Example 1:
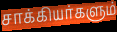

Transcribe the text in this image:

சாக்கியர்களும்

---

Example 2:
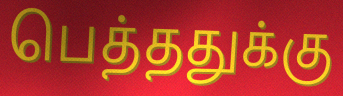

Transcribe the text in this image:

பெத்ததுக்கு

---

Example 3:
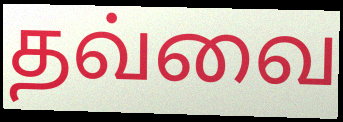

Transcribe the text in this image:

தவ்வை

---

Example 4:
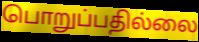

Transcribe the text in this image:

பொறுப்பதில்லை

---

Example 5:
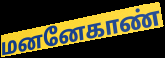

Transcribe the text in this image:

மனனேகாண்